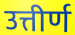
उत्तीर्ण